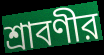
শ্রাবণীর